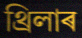
থ্ৰিলাৰ